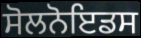
ਸੋਲਨੋਇਡਸ